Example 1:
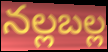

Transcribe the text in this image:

నల్లబల్ల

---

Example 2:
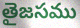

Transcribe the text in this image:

తైజసము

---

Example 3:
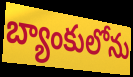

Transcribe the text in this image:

బ్యాంకులోను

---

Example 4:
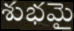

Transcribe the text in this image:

శుభమై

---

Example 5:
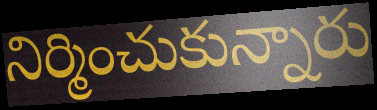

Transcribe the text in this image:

నిర్మించుకున్నారు